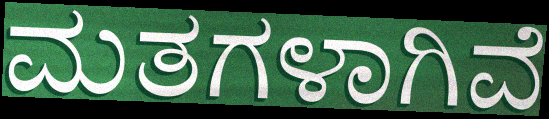
ಮತಗಳಾಗಿವೆ